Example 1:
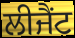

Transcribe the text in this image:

ਲੀਜੈਂਟ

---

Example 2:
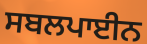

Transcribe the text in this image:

ਸਬਲਪਾਈਨ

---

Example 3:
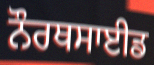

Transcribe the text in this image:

ਨੌਰਥਸਾਈਡ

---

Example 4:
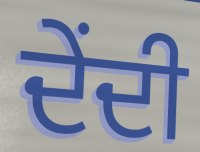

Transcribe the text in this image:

ਦੇਂਦੀ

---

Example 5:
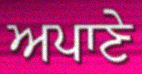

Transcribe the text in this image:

ਅਪਾਣੇ